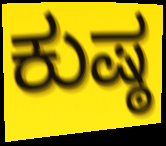
ಕುಷ್ಠ